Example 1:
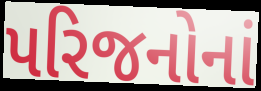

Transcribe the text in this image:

પરિજનોનાં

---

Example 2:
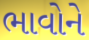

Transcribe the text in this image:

ભાવોને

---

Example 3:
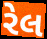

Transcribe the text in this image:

રેલ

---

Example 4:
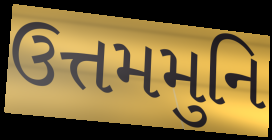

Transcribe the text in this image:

ઉત્તમમુનિ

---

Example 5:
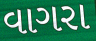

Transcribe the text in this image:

વાગરા